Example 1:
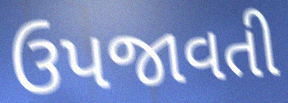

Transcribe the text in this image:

ઉપજાવતી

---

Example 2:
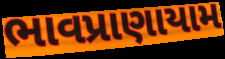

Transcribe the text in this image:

ભાવપ્રાણાયામ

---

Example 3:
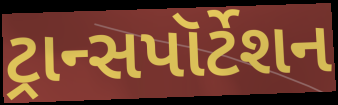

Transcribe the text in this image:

ટ્રાન્સપૉર્ટેશન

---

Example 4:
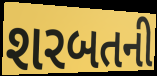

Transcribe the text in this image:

શરબતની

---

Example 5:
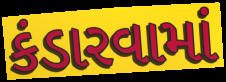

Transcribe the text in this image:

કંડારવામાં